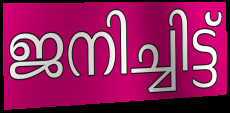
ജനിച്ചിട്ട്